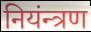
नियंन्त्रण